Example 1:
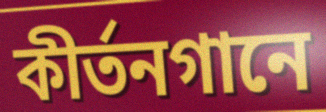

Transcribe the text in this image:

কীর্তনগানে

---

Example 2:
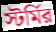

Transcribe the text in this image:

স্টর্মির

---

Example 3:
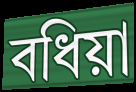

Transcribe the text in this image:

বধিয়া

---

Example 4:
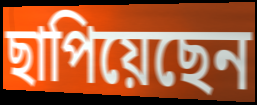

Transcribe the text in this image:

ছাপিয়েছেন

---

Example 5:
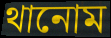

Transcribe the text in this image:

থানোম